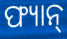
ଫ୍ୟାନ୍